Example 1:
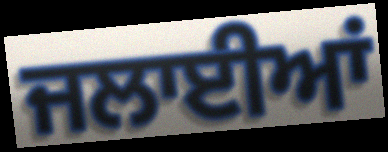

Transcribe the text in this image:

ਜਲਾਈਆਂ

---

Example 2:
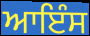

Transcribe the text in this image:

ਆਇੰਸ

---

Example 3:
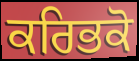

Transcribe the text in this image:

ਕਰਿਭਕੋ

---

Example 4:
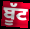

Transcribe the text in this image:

ਬੂੱਟ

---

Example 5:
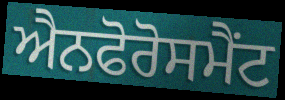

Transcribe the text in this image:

ਐਨਫੋਰੋਸਮੈਂਟ